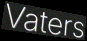
Vaters